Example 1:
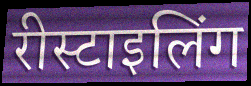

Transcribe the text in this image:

रीस्टाइलिंग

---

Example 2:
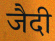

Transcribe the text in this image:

जैदी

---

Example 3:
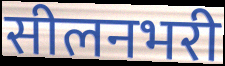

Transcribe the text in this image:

सीलनभरी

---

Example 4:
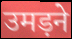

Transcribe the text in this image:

उमड़ने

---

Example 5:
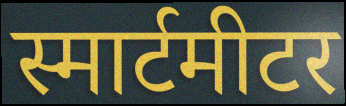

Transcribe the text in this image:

स्मार्टमीटर